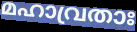
മഹാവ്രതാഃ